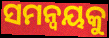
ସମନ୍ବୟକୁ